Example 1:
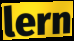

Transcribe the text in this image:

lern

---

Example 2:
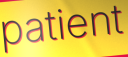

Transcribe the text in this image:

patient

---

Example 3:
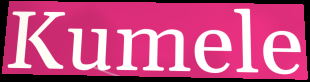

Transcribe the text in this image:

Kumele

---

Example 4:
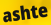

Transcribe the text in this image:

ashte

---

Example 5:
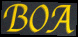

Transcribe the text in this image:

BOA